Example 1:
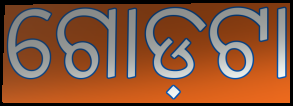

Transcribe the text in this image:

ଗୋଡ଼ଟା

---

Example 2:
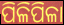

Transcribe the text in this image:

ପିଳିପିଳା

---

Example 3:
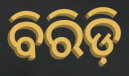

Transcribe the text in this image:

ବିରିଡ଼ି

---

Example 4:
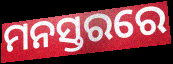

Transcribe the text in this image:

ମନସ୍ତରରେ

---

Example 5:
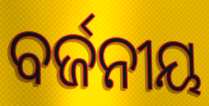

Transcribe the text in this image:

ବର୍ଜନୀୟ